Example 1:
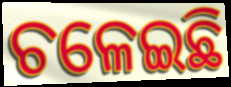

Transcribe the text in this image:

ଚଳେଇଛି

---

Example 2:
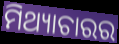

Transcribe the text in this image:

ମିଥ୍ୟାଚାରର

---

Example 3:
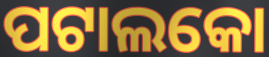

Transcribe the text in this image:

ପଟାଲକୋ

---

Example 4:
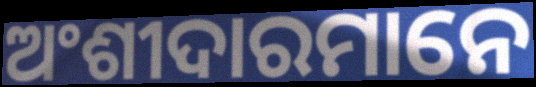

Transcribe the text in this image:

ଅଂଶୀଦାରମାନେ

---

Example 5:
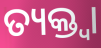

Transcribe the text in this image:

ତ୍ୟକ୍ତ୍ୱା